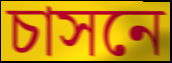
চাসনে